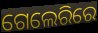
ଗେଲେରିରେ